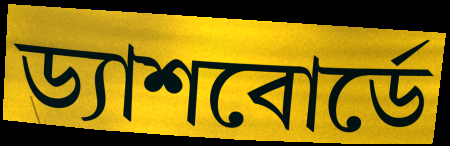
ড্যাশবোর্ডে